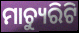
ମାଚ୍ୟୁରିଟି